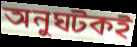
অনুঘটকই